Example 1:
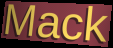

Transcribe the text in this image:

Mack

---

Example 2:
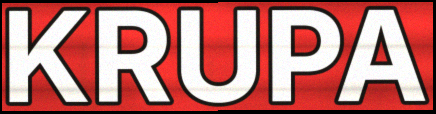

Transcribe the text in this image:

KRUPA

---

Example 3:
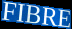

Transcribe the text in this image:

FIBRE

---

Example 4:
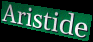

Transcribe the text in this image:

Aristide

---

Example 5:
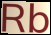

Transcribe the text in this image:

Rb